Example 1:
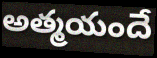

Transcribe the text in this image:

అత్మయందే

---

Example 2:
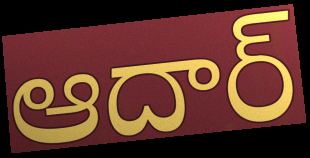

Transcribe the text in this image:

ఆదార్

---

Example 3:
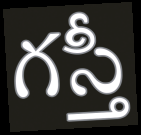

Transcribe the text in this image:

గస్తీ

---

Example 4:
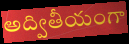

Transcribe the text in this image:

అద్వితీయంగా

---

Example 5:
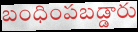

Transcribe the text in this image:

బంధింపబడ్డారు